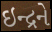
ઇન્દ્રને